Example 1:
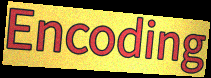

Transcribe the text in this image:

Encoding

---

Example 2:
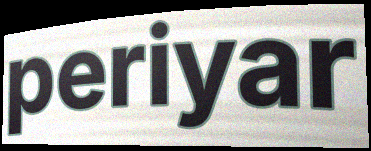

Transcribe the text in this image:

periyar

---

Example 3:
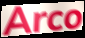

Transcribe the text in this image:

Arco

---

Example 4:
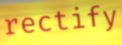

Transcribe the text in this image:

rectify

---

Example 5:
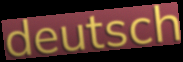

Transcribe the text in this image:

deutsch